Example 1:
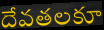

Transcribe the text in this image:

దేవతలకూ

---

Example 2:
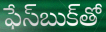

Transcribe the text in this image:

ఫేస్‌బుక్‌తో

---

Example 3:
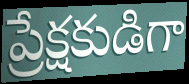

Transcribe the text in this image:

ప్రేక్షకుడిగా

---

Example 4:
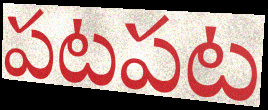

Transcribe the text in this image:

పటపట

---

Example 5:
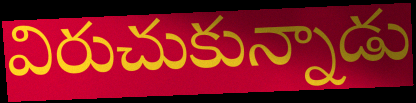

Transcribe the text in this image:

విరుచుకున్నాడు